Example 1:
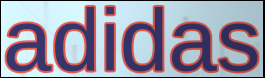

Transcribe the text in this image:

adidas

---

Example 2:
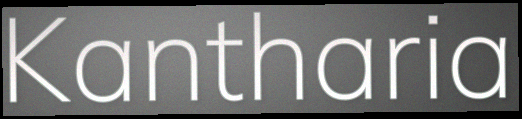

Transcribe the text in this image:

Kantharia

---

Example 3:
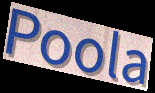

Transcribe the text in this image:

Poola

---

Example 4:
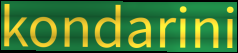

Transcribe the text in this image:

kondarini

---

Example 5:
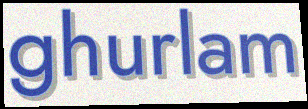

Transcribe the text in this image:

ghurlam